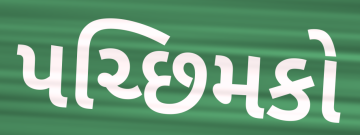
પચ્છિમકો